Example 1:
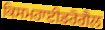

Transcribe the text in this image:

ਕਿਸਮਹਾਈਡਰੋਗੈਲ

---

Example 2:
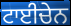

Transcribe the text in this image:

ਟਾਈਚੇਨ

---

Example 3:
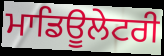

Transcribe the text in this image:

ਮਾਡਿਊਲੇਟਰੀ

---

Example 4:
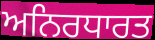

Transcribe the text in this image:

ਅਨਿਰਧਾਰਤ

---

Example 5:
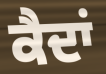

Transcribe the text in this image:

ਕੈਦਾਂ